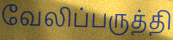
வேலிப்பருத்தி